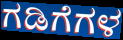
ಗಡಿಗೆಗಳ